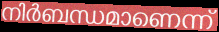
നിർബന്ധമാണെന്ന്